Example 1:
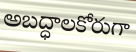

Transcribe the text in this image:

అబద్ధాలకోరుగా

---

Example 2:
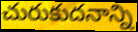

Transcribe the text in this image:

చురుకుదనాన్ని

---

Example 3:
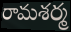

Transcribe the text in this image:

రామశర్మ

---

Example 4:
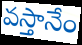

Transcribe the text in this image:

వస్తానేం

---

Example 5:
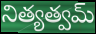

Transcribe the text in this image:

నిత్యత్వమ్